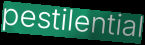
pestilential